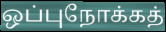
ஒப்புநோக்கத்